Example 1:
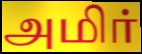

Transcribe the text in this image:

அமிர்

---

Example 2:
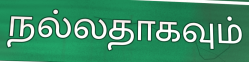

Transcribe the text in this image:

நல்லதாகவும்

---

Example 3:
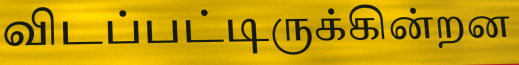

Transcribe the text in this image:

விடப்பட்டிருக்கின்றன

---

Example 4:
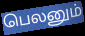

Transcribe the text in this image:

பெலனும்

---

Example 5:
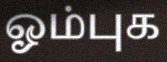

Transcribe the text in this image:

ஓம்புக